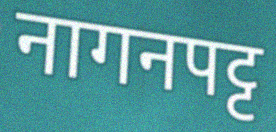
नागनपट्ट